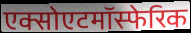
एक्सोएटमॉस्फेरिक